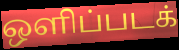
ஒளிப்படக்